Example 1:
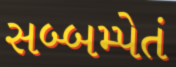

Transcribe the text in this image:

સબ્બમ્પેતં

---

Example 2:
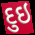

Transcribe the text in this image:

દુઇ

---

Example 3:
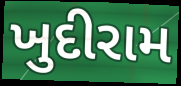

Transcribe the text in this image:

ખુદીરામ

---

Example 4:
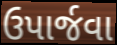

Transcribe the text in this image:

ઉપાર્જવા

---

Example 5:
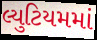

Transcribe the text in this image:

લ્યુટિયમમાં